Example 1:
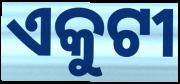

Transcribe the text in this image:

ଏକୁଟୀ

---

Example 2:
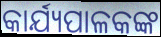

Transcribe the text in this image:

କାର୍ଯ୍ୟପାଳକଙ୍କ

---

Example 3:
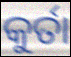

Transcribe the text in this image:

କୁର୍ତା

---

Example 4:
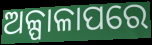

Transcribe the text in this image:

ଅଳ୍ପାଳାପରେ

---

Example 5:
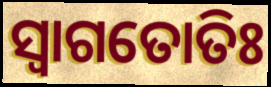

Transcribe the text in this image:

ସ୍ଵାଗତୋତିଃ